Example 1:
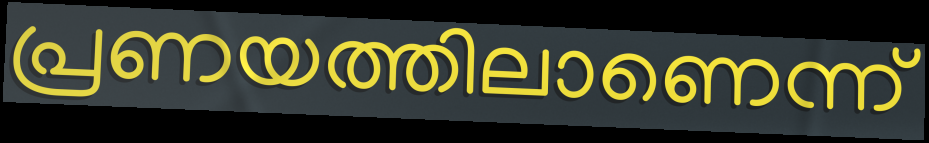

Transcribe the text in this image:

പ്രണയത്തിലാണെന്ന്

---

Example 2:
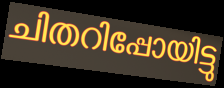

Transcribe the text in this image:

ചിതറിപ്പോയിട്ടു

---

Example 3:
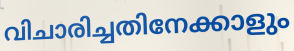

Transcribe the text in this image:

വിചാരിച്ചതിനേക്കാളും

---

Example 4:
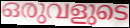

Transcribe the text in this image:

ഒരുവളുടെ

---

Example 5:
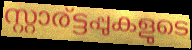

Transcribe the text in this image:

സ്റ്റാര്ട്ടപ്പുകളുടെ